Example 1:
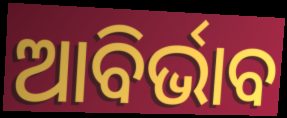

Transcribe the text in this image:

ଆବିର୍ଭାବ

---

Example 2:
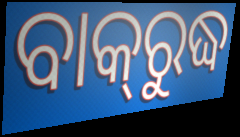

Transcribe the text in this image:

ବାକ୍‌ରୁଦ୍ଧ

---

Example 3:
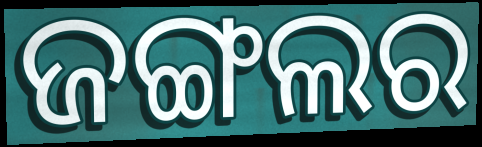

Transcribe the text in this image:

ଜଙ୍ଗଲର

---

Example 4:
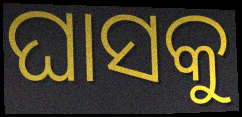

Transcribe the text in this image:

ଘାସକୁ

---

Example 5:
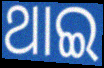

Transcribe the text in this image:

ଥାଇ